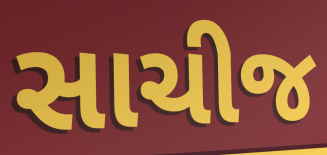
સાચીજ